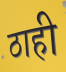
ठाही